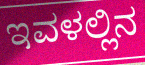
ಇವಳಲ್ಲಿನ